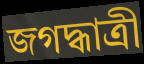
জগদ্ধাত্রী